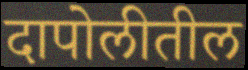
दापोलीतील